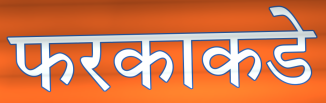
फरकाकडे